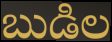
బుడిల